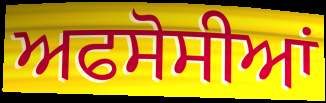
ਅਫਸੋਸੀਆਂ